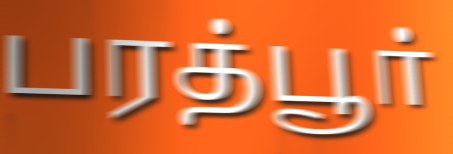
பரத்பூர்